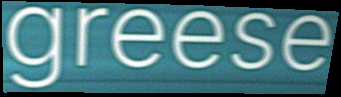
greese